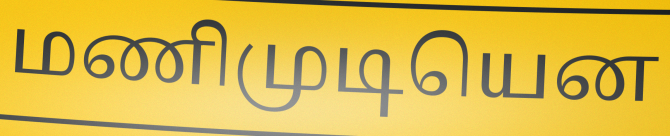
மணிமுடியென